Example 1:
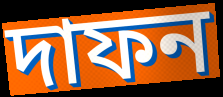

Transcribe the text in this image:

দাফন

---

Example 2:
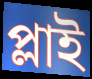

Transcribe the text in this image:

প্লাই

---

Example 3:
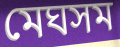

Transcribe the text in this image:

মেঘসম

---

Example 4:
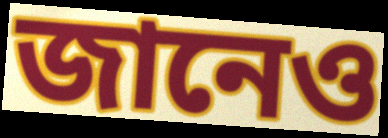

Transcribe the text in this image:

জানেও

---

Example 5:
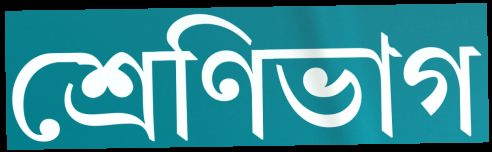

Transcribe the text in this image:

শ্রেণিভাগ